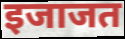
इजाजत